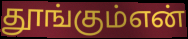
தூங்கும்என்